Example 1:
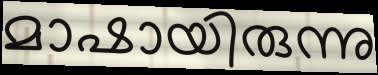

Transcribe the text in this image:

മാഷായിരുന്നു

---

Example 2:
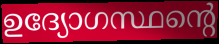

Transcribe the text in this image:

ഉദ്യോഗസ്ഥന്റെ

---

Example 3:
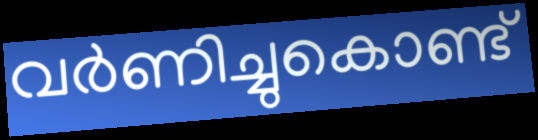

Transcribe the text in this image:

വർണിച്ചുകൊണ്ട്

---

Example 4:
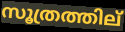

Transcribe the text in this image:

സൂത്രത്തില്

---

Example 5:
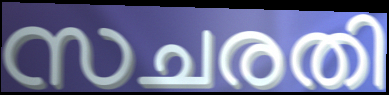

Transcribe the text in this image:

സചരതി